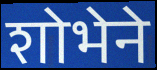
शोभेने